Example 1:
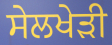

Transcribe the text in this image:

ਸੇਲਖੇੜੀ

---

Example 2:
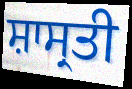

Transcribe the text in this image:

ਸ਼ਾਸ੍ਰਤੀ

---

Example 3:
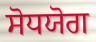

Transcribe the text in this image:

ਸੋਧਯੋਗ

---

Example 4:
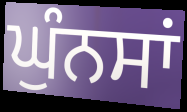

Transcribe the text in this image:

ਘੁੰਨਸਾਂ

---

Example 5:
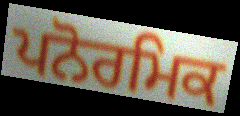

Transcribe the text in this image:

ਪਨੋਰਮਿਕ